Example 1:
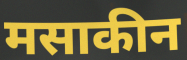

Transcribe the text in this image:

मसाकीन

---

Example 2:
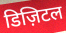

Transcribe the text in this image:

डिज़िटल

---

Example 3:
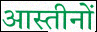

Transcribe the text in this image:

आस्तीनों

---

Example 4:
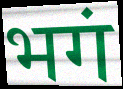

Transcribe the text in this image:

भगं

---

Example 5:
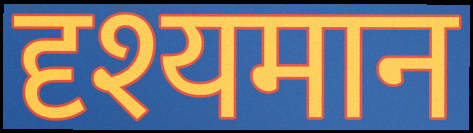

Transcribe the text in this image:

दृश्यमान